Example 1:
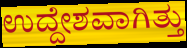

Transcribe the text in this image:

ಉದ್ದೇಶವಾಗಿತ್ತು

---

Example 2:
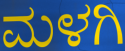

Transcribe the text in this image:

ಮಳಗಿ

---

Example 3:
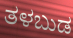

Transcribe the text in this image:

ತಳಬುಡ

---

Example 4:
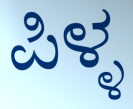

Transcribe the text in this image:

ಪಿಳ್ಳ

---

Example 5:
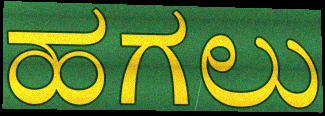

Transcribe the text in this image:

ಹಗಲು